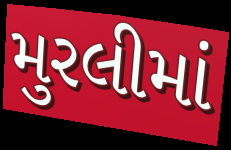
મુરલીમાં